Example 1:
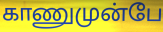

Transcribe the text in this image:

காணுமுன்பே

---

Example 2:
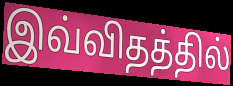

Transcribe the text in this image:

இவ்விதத்தில்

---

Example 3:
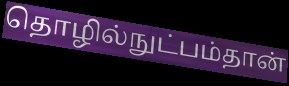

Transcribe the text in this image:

தொழில்நுட்பம்தான்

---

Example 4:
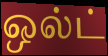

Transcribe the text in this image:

ஒல்ட்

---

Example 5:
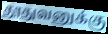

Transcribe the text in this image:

தூதுவனுக்கு